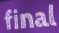
final